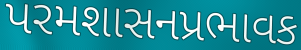
પરમશાસનપ્રભાવક